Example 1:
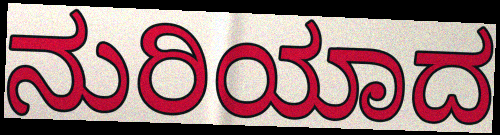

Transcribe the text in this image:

ನುರಿಯಾದ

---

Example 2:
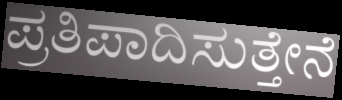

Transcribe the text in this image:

ಪ್ರತಿಪಾದಿಸುತ್ತೇನೆ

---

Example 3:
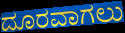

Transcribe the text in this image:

ದೂರವಾಗಲು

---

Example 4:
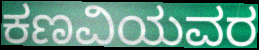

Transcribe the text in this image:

ಕಣವಿಯವರ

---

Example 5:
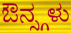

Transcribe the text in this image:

ಔನ್ಸ್ಗಳು